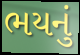
ભયનું